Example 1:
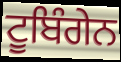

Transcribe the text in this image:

ਟੂਬਿੰਗੇਨ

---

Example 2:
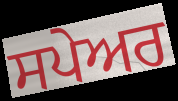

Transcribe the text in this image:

ਸਪੇਅਰ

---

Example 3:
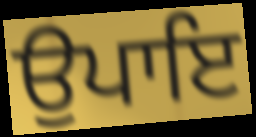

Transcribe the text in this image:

ਉਪਾਇ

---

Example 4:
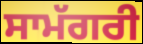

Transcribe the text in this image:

ਸਾਮੱਗਰੀ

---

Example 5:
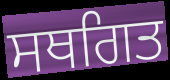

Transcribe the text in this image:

ਸਥਗਿਤ